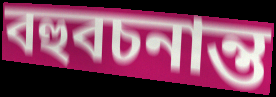
বহুবচনান্ত